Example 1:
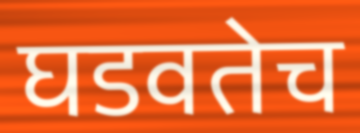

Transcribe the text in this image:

घडवतेच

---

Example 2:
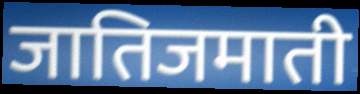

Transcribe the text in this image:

जातिजमाती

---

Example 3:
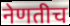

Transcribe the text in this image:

नेणतीच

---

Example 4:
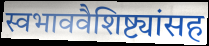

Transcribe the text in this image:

स्वभाववैशिष्ट्यांसह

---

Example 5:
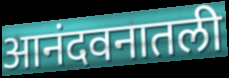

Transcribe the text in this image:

आनंदवनातली